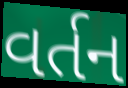
વર્તન